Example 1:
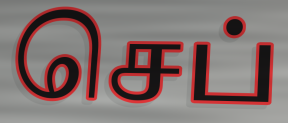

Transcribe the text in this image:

செப்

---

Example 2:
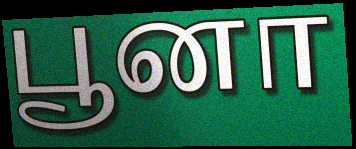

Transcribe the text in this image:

பூனா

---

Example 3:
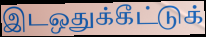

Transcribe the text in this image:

இடஒதுக்கீட்டுக்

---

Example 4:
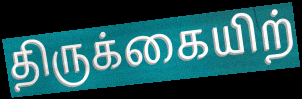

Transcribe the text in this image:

திருக்கையிற்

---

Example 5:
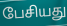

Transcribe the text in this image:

பேசியது